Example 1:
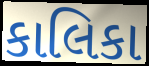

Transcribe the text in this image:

કાલિકા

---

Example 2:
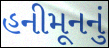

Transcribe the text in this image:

હનીમૂનનું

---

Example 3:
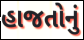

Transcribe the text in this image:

હાજતોનું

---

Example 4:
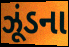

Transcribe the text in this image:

ઝૂંડના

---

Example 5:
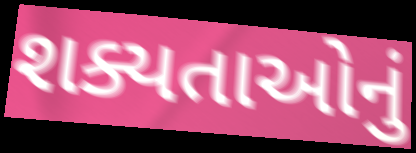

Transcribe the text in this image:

શક્યતાઓનું